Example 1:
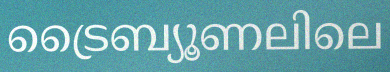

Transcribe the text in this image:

ട്രൈബ്യൂണലിലെ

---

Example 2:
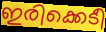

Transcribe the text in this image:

ഇരിക്കെടീ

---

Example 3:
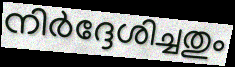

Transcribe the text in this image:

നിർദ്ദേശിച്ചതും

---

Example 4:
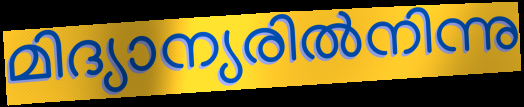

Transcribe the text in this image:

മിദ്യാന്യരിൽനിന്നു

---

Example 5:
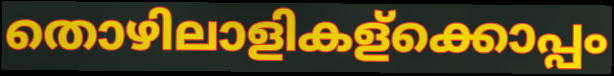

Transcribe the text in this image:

തൊഴിലാളികള്ക്കൊപ്പം